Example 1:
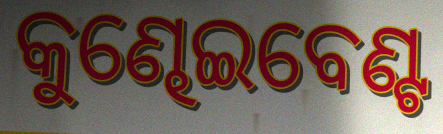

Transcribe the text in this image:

କୁଣ୍ଢେଇବେଣ୍ଟ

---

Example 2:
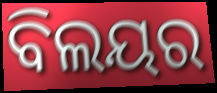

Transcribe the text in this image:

ବିଲୟର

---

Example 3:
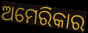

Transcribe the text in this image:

ଅମେରିକାର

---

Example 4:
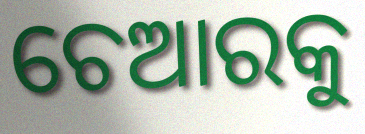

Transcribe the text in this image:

ଚେଆରକୁ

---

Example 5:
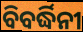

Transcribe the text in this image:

ବିବର୍ଦ୍ଧିନୀ